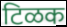
टिळक